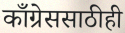
काँग्रेससाठीही